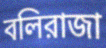
বলিরাজা